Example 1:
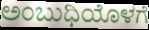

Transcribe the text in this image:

ಅಂಬುಧಿಯೊಳಗೆ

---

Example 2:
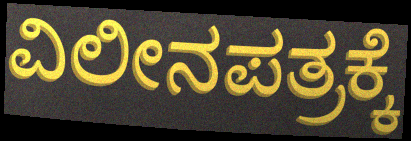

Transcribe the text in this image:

ವಿಲೀನಪತ್ರಕ್ಕೆ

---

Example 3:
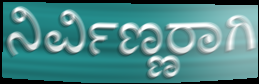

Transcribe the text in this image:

ನಿರ್ವಿಣ್ಣರಾಗಿ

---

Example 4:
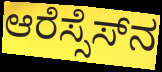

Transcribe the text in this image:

ಆರೆಸ್ಸೆಸ್‌ನ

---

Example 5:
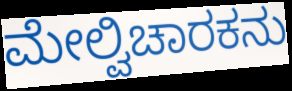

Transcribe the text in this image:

ಮೇಲ್ವಿಚಾರಕನು